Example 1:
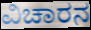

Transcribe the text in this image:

ವಿಚಾರನ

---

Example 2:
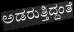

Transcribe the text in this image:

ಅಡರುತ್ತಿದ್ದಂತೆ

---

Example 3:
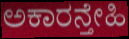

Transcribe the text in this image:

ಅಕಾರನ್ತೇಹಿ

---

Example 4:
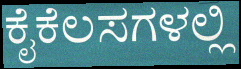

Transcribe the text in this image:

ಕೈಕೆಲಸಗಳಲ್ಲಿ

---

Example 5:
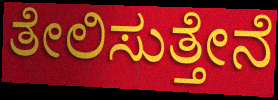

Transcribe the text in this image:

ತೇಲಿಸುತ್ತೇನೆ